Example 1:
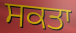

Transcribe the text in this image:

ਸਕਤਾ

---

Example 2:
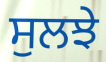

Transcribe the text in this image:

ਸੁਲਝੇ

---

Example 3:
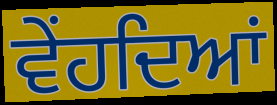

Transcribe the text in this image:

ਵੇਂਹਦਿਆਂ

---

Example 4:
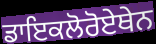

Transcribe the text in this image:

ਡਾਇਕਲੋਰੋਏਥੇਨ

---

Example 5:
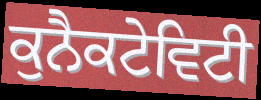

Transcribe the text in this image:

ਕੁਨੈਕਟੇਵਿਟੀ